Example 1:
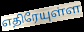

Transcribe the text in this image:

எதிரேயுள்ள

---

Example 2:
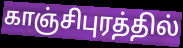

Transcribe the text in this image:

காஞ்சிபுரத்தில்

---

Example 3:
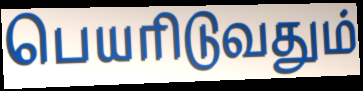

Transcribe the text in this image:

பெயரிடுவதும்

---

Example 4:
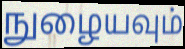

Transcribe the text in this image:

நுழையவும்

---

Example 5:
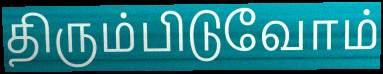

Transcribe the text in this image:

திரும்பிடுவோம்